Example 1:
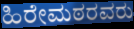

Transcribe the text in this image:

ಹಿರೇಮಠರವರು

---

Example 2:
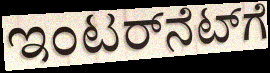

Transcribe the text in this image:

ಇಂಟರ್‌ನೆಟ್‌ಗೆ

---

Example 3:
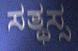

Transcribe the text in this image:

ಸತ್ಥಸ್ಸ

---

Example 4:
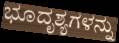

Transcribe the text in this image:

ಭೂದೃಶ್ಯಗಳನ್ನು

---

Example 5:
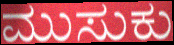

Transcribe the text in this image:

ಮುಸುಕು